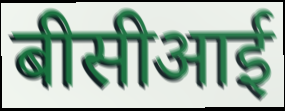
बीसीआई